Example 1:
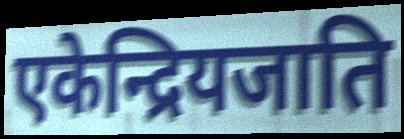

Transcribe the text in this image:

एकेन्द्रियजाति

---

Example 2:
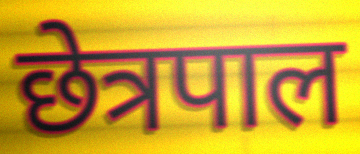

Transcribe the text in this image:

छेत्रपाल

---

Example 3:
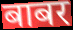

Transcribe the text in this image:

बाबर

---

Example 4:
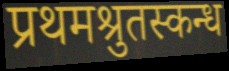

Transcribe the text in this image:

प्रथमश्रुतस्कन्ध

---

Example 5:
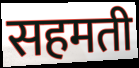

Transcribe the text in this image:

सहमती